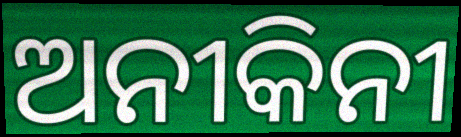
ଅନୀକିନୀ